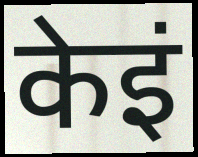
केइं